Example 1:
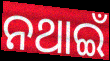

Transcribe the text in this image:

ନଥାଇଁ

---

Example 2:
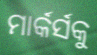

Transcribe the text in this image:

ମାର୍କର୍ସକୁ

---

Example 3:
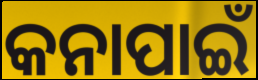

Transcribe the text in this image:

କନାପାଇଁ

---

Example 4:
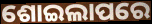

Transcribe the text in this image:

ଶୋଇଲାପରେ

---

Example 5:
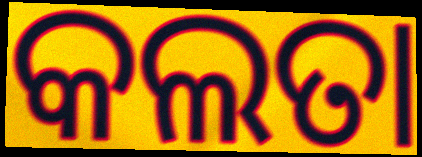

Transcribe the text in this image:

କଲତା